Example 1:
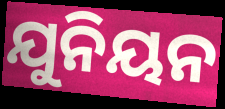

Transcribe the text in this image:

ଯୁନିୟନ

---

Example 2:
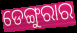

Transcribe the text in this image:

ଡେଙ୍ଗୁରାର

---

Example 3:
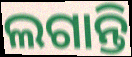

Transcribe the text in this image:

ଲଗାନ୍ତି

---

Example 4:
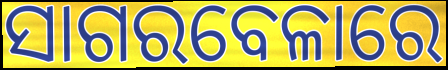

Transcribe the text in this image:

ସାଗରବେଳାରେ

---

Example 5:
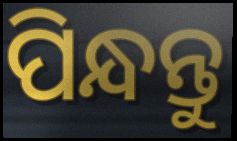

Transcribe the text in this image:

ପିନ୍ଧନ୍ତୁ